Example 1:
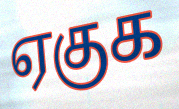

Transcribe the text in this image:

ஏகுக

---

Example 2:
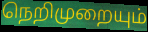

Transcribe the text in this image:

நெறிமுறையும்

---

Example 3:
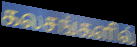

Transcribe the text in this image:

கலசங்களில்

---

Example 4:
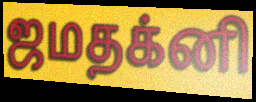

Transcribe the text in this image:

ஜமதக்னி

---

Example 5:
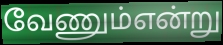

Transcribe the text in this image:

வேணும்என்று